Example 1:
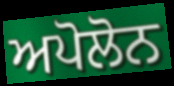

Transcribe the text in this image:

ਅਪੋਲੋਨ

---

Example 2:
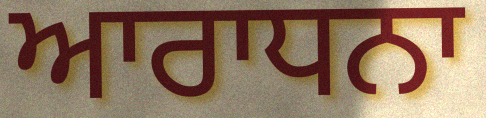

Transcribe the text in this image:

ਆਰਾਧਨਾ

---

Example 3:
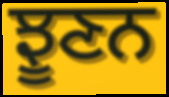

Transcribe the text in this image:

ਝੂਣਨ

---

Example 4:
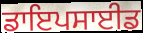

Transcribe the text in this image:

ਡਾਇਪਸਾਈਡ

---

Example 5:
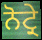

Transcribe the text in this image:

ਨੋਟ੍ਰੇ